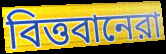
বিত্তবানেরা